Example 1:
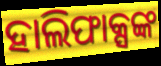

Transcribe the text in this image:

ହାଲିଫାକ୍ସଙ୍କ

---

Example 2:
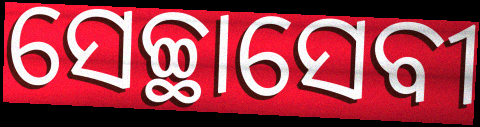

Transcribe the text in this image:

ସେଚ୍ଛାସେବୀ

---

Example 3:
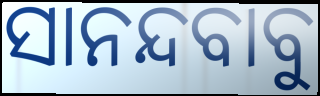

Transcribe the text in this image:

ସାନନ୍ଦବାବୁ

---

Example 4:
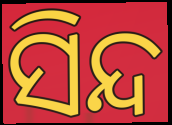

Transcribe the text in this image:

ସିନ୍ଦ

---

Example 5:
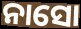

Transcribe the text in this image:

ନାସୋ